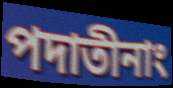
পদাতীনাং